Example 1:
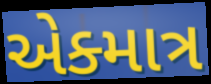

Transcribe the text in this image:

એક્માત્ર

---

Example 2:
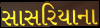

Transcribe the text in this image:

સાસરિયાના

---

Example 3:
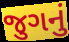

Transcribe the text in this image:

જુગનું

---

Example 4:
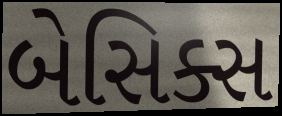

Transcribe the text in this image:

બેસિક્સ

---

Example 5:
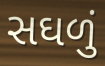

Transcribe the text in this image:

સઘળું